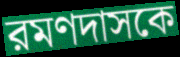
রমণদাসকে